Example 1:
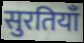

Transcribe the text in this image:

सुरतियाँ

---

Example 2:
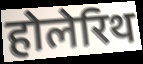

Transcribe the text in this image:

होलेरिथ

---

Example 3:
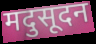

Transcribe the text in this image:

मदुसूदन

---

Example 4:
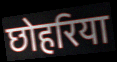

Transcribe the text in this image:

छोहरिया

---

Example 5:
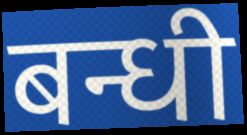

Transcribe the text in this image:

बन्धी